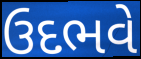
ઉદભવે